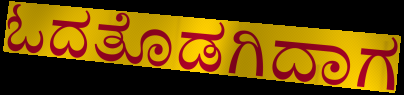
ಓದತೊಡಗಿದಾಗ